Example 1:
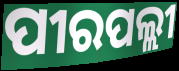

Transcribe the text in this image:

ପୀରପଲ୍ଲୀ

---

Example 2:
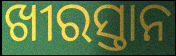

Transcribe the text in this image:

ଖୀରସ୍ତାନ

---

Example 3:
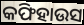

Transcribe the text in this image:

କଫିହାଉସ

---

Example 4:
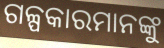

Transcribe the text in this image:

ଗଳ୍ପକାରମାନଙ୍କୁ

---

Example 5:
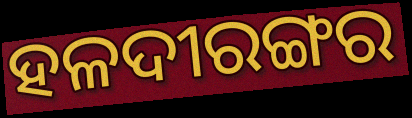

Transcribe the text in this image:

ହଳଦୀରଙ୍ଗର